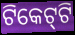
ଟିକେଟ୍‌ଟି